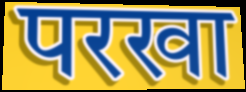
परखा